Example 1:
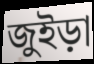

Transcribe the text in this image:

জুইড়া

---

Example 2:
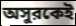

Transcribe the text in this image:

অসুরকেই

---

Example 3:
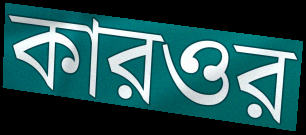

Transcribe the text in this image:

কারওর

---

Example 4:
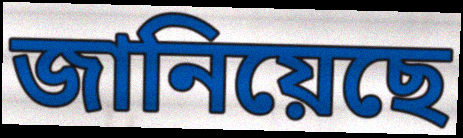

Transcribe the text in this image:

জানিয়েছে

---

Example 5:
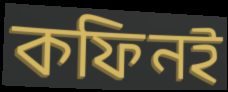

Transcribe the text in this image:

কফিনই